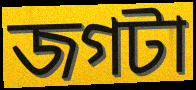
জগটা